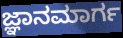
ಜ್ಞಾನಮಾರ್ಗ